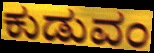
ಕುಡುವಂ